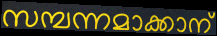
സമ്പന്നമാക്കാന്